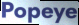
Popeye